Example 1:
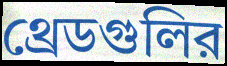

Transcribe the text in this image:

থ্রেডগুলির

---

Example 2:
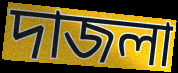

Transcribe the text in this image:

দাজলা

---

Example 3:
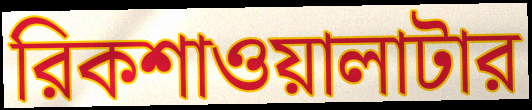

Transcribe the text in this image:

রিকশাওয়ালাটার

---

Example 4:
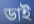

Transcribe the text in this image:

ডাই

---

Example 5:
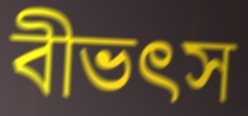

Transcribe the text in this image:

বীভৎস